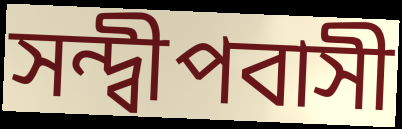
সন্দ্বীপবাসী